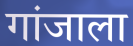
गांजाला